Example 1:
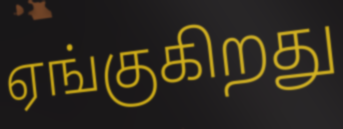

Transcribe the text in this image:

ஏங்குகிறது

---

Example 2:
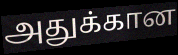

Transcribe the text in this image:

அதுக்கான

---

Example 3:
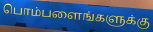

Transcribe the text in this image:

பொம்பளைங்களுக்கு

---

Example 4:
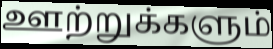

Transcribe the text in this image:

ஊற்றுக்களும்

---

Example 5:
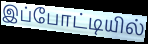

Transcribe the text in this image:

இப்போட்டியில்